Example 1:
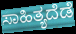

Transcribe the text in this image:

ಸಾಹಿತ್ಯದೆಡೆ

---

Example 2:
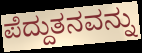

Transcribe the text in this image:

ಪೆದ್ದುತನವನ್ನು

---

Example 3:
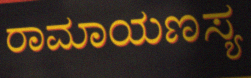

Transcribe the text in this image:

ರಾಮಾಯಣಸ್ಯ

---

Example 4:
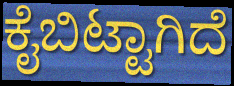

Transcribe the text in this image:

ಕೈಬಿಟ್ಟಾಗಿದೆ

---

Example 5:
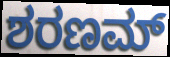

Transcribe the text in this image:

ಶರಣಮ್